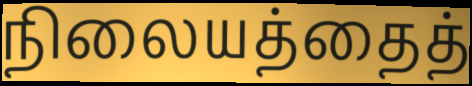
நிலையத்தைத்